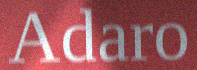
Adaro